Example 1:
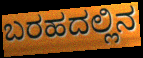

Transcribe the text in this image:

ಬರಹದಲ್ಲಿನ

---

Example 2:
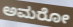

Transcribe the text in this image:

ಅಮರೋ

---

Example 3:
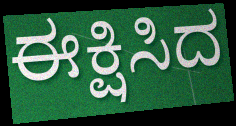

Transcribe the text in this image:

ಈಕ್ಷಿಸಿದ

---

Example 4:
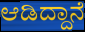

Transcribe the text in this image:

ಆಡಿದ್ದಾನೆ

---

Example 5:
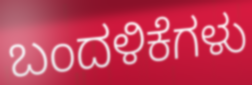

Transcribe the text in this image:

ಬಂದಳಿಕೆಗಳು